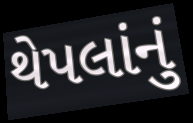
થેપલાંનું